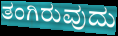
ತಂಗಿರುವುದು